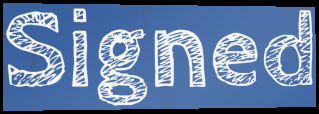
Signed